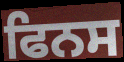
ਫਿਨਸ